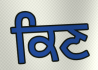
ਕਿਣ